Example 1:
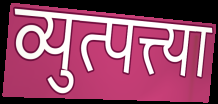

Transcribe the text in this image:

व्युत्पत्त्या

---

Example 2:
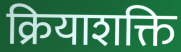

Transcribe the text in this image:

क्रियाशक्ति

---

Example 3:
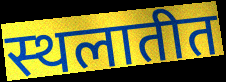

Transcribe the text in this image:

स्थलातीत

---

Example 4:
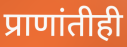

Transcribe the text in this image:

प्राणांतीही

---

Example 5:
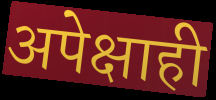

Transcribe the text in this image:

अपेक्षाही